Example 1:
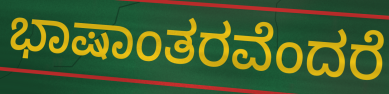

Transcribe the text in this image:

ಭಾಷಾಂತರವೆಂದರೆ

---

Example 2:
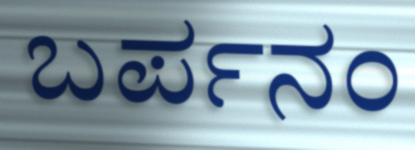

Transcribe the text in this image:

ಬರ್ಪನಂ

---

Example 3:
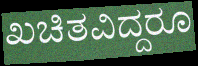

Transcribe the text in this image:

ಖಚಿತವಿದ್ದರೂ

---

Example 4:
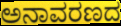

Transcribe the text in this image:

ಅನಾವರಣದ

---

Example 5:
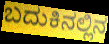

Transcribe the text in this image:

ಬದುಕಿನಲ್ಲಿನ